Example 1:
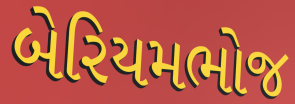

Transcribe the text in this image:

બેરિયમભોજ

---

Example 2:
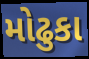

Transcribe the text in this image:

મોઢુકા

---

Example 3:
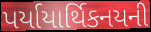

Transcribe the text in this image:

પર્યાયાર્થિકનયની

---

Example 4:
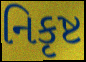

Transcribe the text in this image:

નિકૃષ્ટ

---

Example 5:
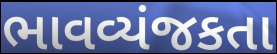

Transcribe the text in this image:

ભાવવ્યંજકતા